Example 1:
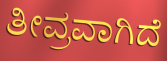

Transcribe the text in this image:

ತೀವ್ರವಾಗಿದೆ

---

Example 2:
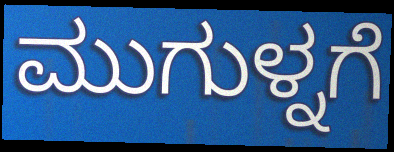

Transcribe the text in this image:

ಮುಗುಳ್ನಗೆ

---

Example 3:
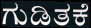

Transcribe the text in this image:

ಗುಡಿತಕೆ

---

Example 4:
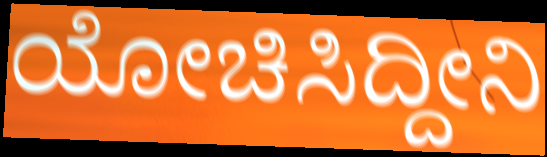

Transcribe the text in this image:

ಯೋಚಿಸಿದ್ದೀನಿ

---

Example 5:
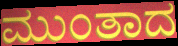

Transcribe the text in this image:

ಮುಂತಾದ